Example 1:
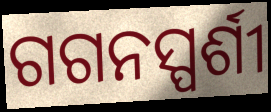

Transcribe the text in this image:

ଗଗନସ୍ପର୍ଶୀ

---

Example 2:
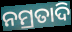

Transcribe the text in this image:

ନମ୍ରତାଦି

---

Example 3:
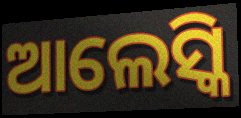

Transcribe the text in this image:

ଆଲେସ୍କି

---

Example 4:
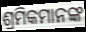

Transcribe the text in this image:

ଶ୍ରମିକମାନଙ୍କ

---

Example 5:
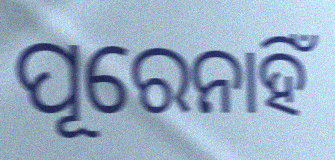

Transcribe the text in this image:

ପୂରେନାହିଁ